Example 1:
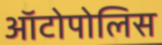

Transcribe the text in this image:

ऑटोपोलिस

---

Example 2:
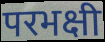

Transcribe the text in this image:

परभक्षी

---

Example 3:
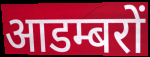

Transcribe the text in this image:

आडम्बरों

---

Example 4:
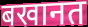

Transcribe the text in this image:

बखानत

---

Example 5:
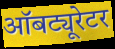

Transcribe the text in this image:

ऑबट्यूरेटर